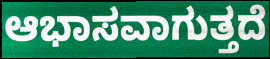
ಆಭಾಸವಾಗುತ್ತದೆ